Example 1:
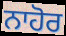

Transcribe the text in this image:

ਨਾਹੋਰ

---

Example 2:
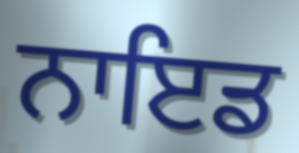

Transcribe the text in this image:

ਨਾਇਡ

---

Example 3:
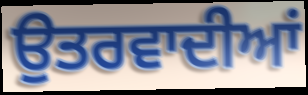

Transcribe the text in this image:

ਉਤਰਵਾਦੀਆਂ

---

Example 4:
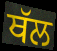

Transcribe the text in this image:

ਥੱਲ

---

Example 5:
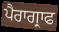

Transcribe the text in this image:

ਪੈਰਾਗ੍ਰਾਫ